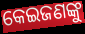
କେଇଜଣଙ୍କୁ